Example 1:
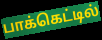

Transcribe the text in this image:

பாக்கெட்டில்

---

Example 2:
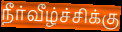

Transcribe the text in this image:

நீர்வீழ்ச்சிக்கு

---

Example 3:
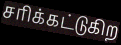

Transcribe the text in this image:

சரிக்கட்டுகிற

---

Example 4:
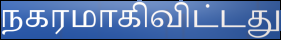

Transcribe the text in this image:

நகரமாகிவிட்டது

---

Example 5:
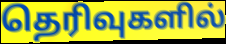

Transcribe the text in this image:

தெரிவுகளில்